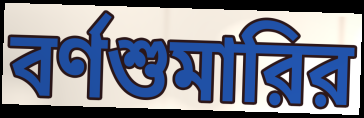
বর্ণশুমারির